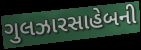
ગુલઝારસાહેબની